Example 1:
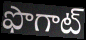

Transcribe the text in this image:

ఫొగాట్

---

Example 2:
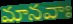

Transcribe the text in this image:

మానవాః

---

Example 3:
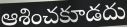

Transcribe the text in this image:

ఆశించకూడదు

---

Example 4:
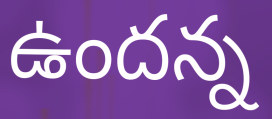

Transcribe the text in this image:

ఉందన్న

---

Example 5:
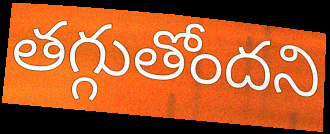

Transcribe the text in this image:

తగ్గుతోందని